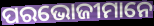
ପରଭୋଜୀମାନେ